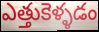
ఎత్తుకెళ్ళడం